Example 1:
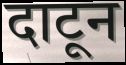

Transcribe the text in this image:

दाटून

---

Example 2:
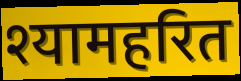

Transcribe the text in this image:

श्यामहरित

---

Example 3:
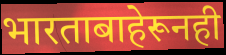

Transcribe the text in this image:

भारताबाहेरूनही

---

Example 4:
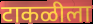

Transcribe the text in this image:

टाकळीला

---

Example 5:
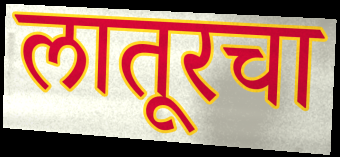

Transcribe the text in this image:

लातूरचा